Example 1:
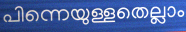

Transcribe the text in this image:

പിന്നെയുള്ളതെല്ലാം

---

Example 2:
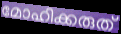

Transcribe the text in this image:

മോഹിക്കരുത്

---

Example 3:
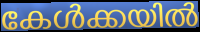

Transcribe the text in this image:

കേൾക്കയിൽ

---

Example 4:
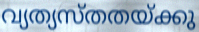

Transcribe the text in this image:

വ്യത്യസ്തതയ്ക്കു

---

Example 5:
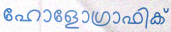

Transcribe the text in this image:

ഹോളോഗ്രാഫിക്